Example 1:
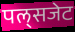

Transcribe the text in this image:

पल्सजेट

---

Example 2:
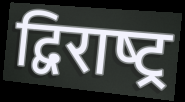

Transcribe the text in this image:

द्विराष्ट्र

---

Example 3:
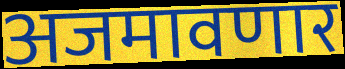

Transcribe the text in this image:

अजमावणार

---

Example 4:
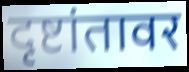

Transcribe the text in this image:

दृष्टांतावर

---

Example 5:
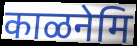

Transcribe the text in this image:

काळनेमि